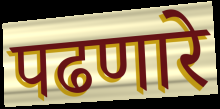
पढणारे